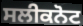
ਸਲੀਕਨੋਟ